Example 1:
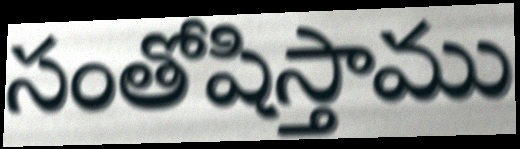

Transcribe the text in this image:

సంతోషిస్తాము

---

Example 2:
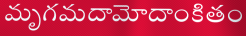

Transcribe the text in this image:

మృగమదామోదాంకితం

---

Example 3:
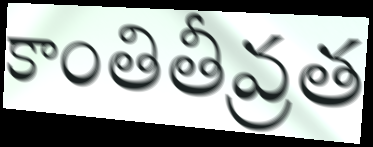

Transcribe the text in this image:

కాంతితీవ్రత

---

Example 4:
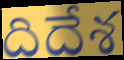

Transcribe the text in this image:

దిదేశ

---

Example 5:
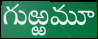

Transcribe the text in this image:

గుఱ్ఱమూ